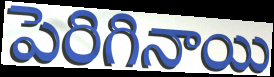
పెరిగినాయి